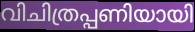
വിചിത്രപ്പണിയായി